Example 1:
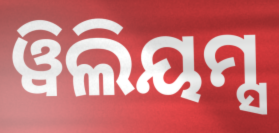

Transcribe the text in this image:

ୱିଲିୟମ୍ସ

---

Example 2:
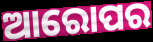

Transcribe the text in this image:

ଆରୋପର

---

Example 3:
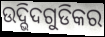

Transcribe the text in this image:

ଉଦ୍ଭିଦଗୁଡିକର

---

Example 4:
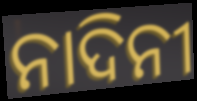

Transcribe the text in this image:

ନାଦିନୀ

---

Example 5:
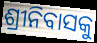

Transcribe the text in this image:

ଶ୍ରୀନିବାସକୁ